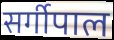
सर्गीपाल